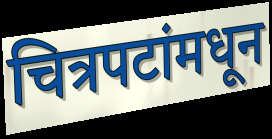
चित्रपटांमधून